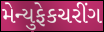
મેન્યુફેકચરીંગ